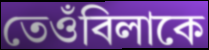
তেওঁবিলাকে